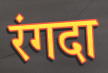
रंगदा